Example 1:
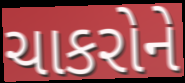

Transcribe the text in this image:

ચાકરોને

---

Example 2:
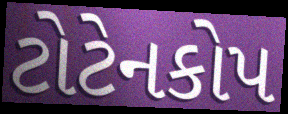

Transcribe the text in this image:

ટોટેનકોપ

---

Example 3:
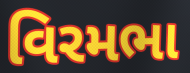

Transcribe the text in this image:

વિરમભા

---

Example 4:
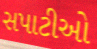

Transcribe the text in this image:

સપાટીઓ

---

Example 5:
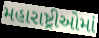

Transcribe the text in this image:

મહારાષ્ટ્રીઓમાં